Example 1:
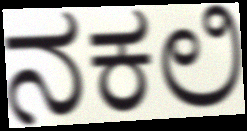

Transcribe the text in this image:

ನಕಲಿ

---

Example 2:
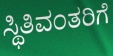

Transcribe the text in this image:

ಸ್ಥಿತಿವಂತರಿಗೆ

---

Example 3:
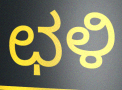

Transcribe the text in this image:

ಛಳಿ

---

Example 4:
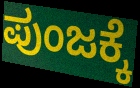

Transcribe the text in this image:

ಪುಂಜಕ್ಕೆ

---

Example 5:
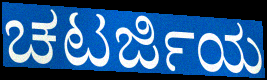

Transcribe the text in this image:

ಚಟರ್ಜಿಯ